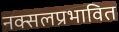
नक्सलप्रभावित